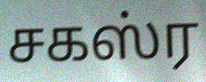
சகஸ்ர